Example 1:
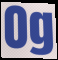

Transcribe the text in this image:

Og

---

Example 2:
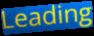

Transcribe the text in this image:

Leading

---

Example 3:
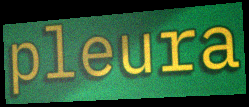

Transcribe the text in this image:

pleura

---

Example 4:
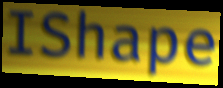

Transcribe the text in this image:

IShape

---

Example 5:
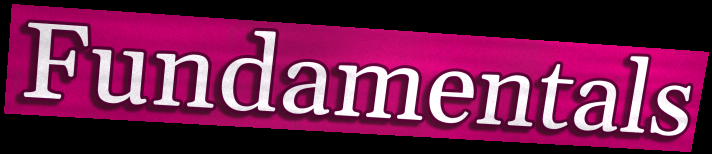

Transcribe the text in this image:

Fundamentals